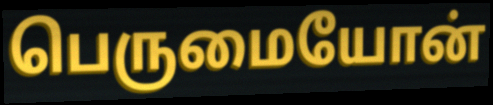
பெருமையோன்